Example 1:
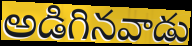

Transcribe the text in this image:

అడిగినవాడు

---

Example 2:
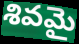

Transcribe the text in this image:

శివమై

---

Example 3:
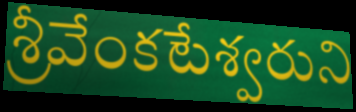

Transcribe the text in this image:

శ్రీవేంకటేశ్వరుని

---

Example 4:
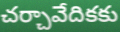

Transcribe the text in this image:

చర్చావేదికకు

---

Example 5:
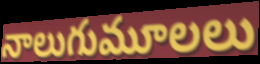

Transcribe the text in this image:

నాలుగుమూలలు